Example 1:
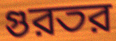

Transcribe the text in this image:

গুরতর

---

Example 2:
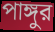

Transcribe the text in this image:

পাঙ্গুর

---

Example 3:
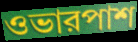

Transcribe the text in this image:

ওভারপাশ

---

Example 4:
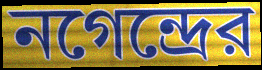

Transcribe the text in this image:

নগেন্দ্রের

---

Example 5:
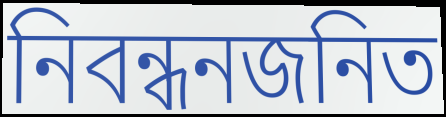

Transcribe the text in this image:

নিবন্ধনজনিত